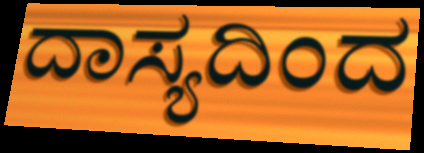
ದಾಸ್ಯದಿಂದ